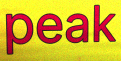
peak